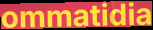
ommatidia